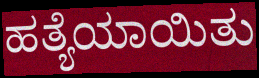
ಹತ್ಯೆಯಾಯಿತು